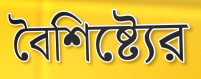
বৈশিষ্ট্যের